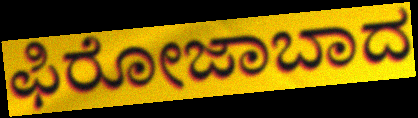
ಫಿರೋಜಾಬಾದ